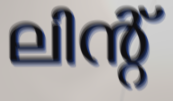
ലിന്റ്